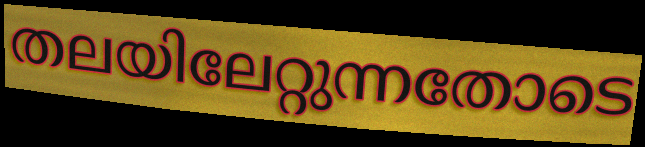
തലയിലേറ്റുന്നതോടെ